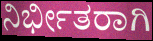
ನಿರ್ಭೀತರಾಗಿ